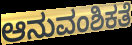
ಆನುವಂಶಿಕತೆ